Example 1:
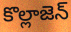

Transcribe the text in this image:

కొల్లాజెన్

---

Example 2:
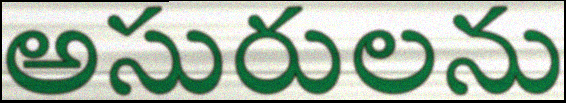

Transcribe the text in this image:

అసురులను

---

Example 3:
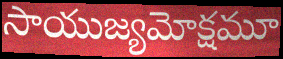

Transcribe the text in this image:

సాయుజ్యమోక్షమూ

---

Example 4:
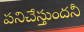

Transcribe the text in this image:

పనిచేస్తుందనీ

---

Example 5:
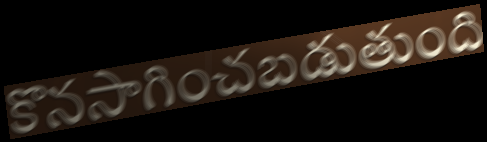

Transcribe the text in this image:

కొనసాగించబడుతుంది